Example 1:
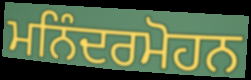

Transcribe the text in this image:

ਮਨਿੰਦਰਮੋਹਨ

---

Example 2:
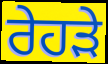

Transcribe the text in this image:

ਰੇਹੜੇ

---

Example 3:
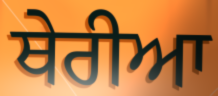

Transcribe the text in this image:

ਥੇਰੀਆ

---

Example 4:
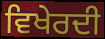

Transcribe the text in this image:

ਵਿਖੇਰਦੀ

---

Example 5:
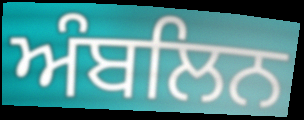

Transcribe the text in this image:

ਅੰਬਲਿਨ